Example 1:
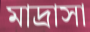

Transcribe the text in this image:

মাদ্রাসা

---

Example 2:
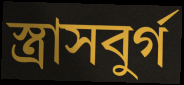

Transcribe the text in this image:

স্ত্রাসবুর্গ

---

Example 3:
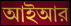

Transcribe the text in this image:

আইআর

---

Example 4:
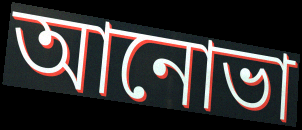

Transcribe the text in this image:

আনোভা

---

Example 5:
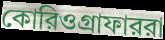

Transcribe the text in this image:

কোরিওগ্রাফাররা